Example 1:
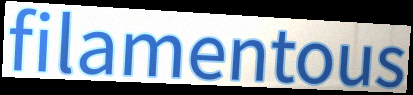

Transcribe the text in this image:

filamentous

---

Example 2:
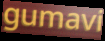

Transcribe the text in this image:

gumavi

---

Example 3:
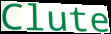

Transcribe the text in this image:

Clute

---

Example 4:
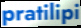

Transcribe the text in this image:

pratilipi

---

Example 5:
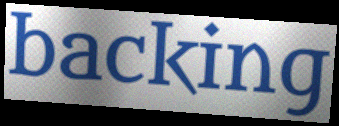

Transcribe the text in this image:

backing